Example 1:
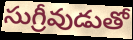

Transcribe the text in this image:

సుగ్రీవుడుతో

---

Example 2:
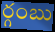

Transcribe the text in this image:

ర్గంబు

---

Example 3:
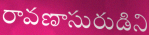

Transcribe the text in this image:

రావణాసురుడిని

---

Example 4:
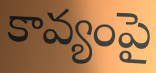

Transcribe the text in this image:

కావ్యంపై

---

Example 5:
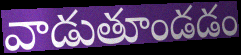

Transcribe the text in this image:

వాడుతూండడం